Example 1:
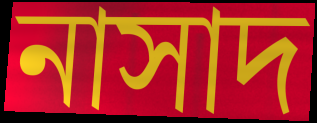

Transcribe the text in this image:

নাসাদ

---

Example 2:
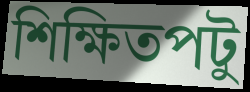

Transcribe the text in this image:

শিক্ষিতপটু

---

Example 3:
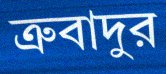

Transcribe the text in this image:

ত্রুবাদুর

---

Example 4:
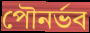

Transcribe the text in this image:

পৌনর্ভব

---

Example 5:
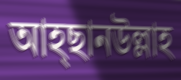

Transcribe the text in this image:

আহ্ছানউল্লাহ